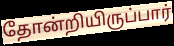
தோன்றியிருப்பார்